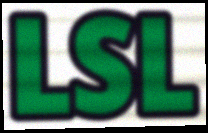
LSL